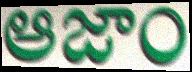
ఆజాం